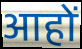
आहों